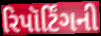
રિપૉર્ટિંગની